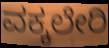
ವಕ್ಕಲೇರಿ